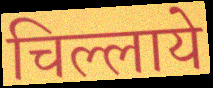
चिल्लाये